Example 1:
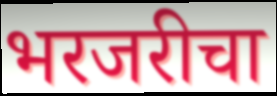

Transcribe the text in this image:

भरजरीचा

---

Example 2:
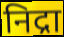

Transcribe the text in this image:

निद्रा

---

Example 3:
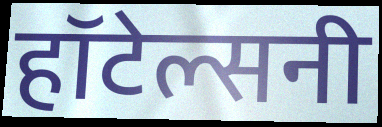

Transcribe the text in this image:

हॉटेल्सनी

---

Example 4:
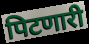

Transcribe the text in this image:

पिटणारी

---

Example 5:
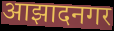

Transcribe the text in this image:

आझादनगर